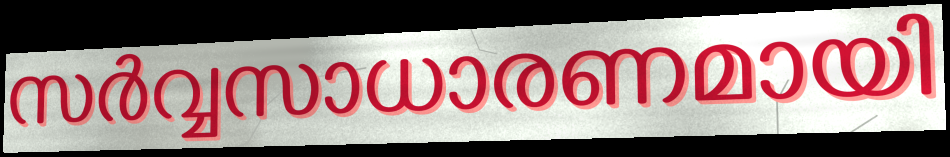
സർവ്വസാധാരണമായി